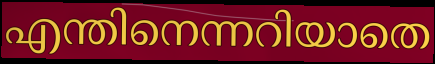
എന്തിനെന്നറിയാതെ